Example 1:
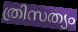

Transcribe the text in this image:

ത്രിസത്യം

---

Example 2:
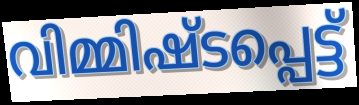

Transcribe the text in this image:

വിമ്മിഷ്ടപ്പെട്ട്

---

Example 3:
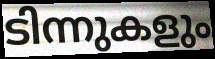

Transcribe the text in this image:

ടിന്നുകളും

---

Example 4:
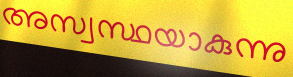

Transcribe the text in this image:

അസ്വസ്ഥയാകുന്നു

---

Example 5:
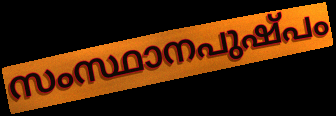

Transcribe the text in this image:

സംസ്ഥാനപുഷ്പം